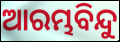
ଆରମ୍ଭବିନ୍ଦୁ